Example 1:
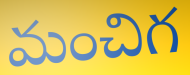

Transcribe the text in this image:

మంచిగ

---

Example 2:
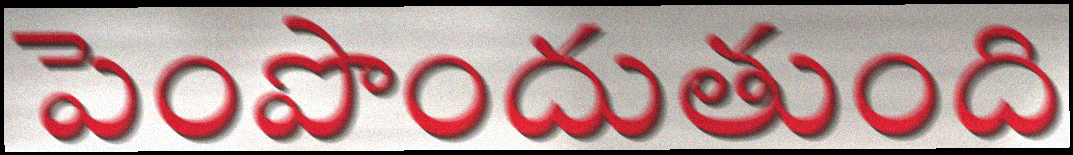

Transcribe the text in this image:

పెంపొందుతుంది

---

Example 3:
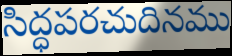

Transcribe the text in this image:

సిద్ధపరచుదినము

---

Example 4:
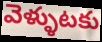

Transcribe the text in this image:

వెళ్ళుటకు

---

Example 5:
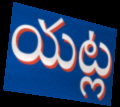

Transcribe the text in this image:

యట్ల